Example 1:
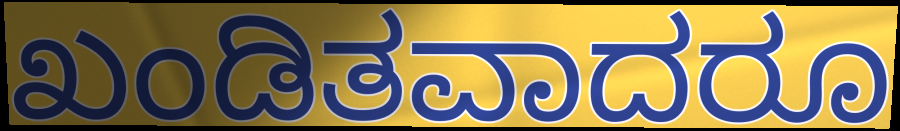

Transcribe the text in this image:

ಖಂಡಿತವಾದರೂ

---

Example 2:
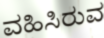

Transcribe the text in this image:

ವಹಿಸಿರುವ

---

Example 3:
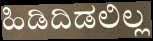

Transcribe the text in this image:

ಹಿಡಿದಿಡಲಿಲ್ಲ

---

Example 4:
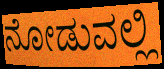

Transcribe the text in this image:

ನೋಡುವಲ್ಲಿ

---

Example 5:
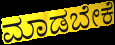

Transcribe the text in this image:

ಮಾಡಬೇಕೆ